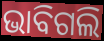
ଭାବିଗଲି